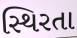
સ્થિરતા